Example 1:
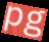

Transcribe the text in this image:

pg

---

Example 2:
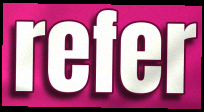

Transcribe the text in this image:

refer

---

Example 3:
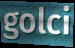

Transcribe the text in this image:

golci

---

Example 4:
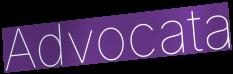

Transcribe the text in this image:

Advocata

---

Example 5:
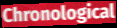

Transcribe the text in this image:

Chronological